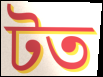
টত